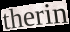
therin